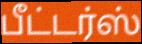
பீட்டர்ஸ்